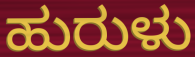
ಹುರುಳು